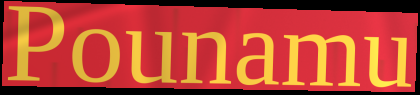
Pounamu